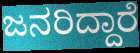
ಜನರಿದ್ದಾರೆ